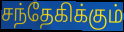
சந்தேகிக்கும்